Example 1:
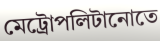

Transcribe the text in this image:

মেট্রোপলিটানোতে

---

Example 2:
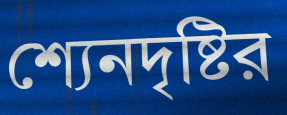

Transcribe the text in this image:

শ্যেনদৃষ্টির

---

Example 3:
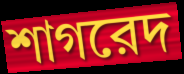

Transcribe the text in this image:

শাগরেদ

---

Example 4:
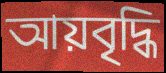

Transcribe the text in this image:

আয়বৃদ্ধি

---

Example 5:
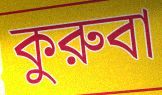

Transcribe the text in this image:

কুরুবা